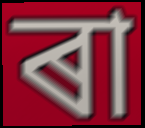
ৰা